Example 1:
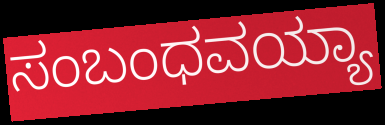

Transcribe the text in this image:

ಸಂಬಂಧವಯ್ಯಾ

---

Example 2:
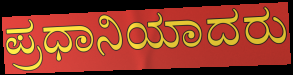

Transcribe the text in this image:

ಪ್ರಧಾನಿಯಾದರು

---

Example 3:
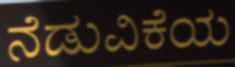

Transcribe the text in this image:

ನೆಡುವಿಕೆಯ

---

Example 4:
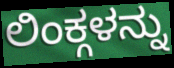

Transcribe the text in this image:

ಲಿಂಕ್ಗಳನ್ನು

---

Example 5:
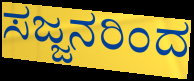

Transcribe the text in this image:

ಸಜ್ಜನರಿಂದ